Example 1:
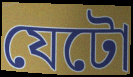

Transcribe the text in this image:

যেটো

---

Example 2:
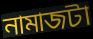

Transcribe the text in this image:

নামাজটা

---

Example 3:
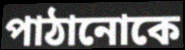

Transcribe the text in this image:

পাঠানোকে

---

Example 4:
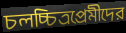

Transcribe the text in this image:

চলচ্চিত্রপ্রেমীদের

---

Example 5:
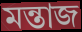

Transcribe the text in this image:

মন্তাজ